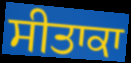
ਸੀਤਾਕਾ